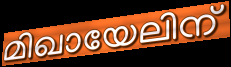
മിഖായേലിന്